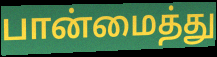
பான்மைத்து